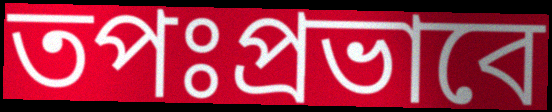
তপঃপ্রভাবে